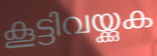
കൂട്ടിവയ്ക്കുക